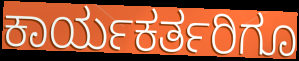
ಕಾರ್ಯಕರ್ತರಿಗೂ